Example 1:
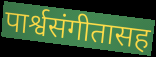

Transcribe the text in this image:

पार्श्वसंगीतासह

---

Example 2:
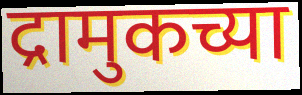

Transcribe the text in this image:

द्रामुकच्या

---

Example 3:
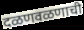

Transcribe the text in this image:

दळणवळणाची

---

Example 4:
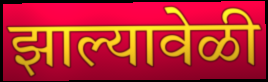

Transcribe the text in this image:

झाल्यावेळी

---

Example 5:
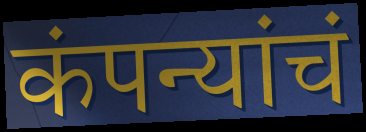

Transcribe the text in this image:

कंपन्यांचं